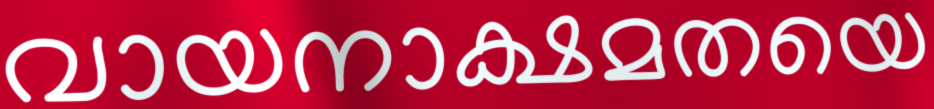
വായനാക്ഷമതയെ